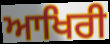
ਆਖਿਰੀ